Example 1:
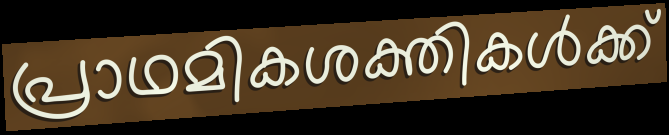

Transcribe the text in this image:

പ്രാഥമികശക്തികൾക്ക്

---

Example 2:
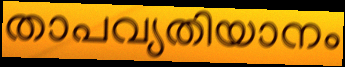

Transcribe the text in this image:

താപവ്യതിയാനം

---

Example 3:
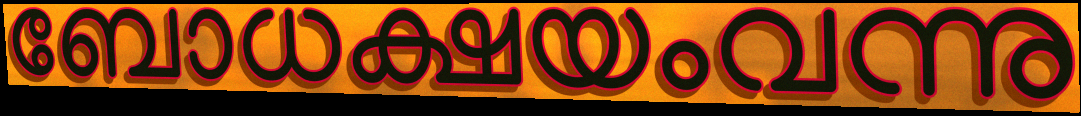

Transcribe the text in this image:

ബോധക്ഷയംവന്നു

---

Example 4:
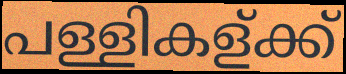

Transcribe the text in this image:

പള്ളികള്ക്ക്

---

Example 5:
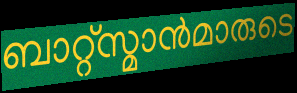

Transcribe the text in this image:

ബാറ്റ്സ്മാൻമാരുടെ